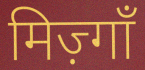
मिज़्गाँ